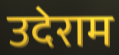
उदेराम